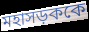
মহাসড়ককে